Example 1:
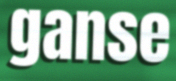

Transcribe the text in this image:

ganse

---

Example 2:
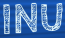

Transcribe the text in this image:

INU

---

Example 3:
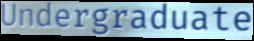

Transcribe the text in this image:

Undergraduate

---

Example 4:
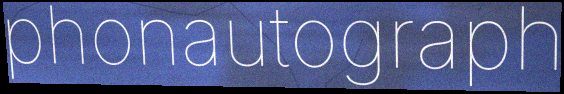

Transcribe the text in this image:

phonautograph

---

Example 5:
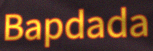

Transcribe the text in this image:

Bapdada